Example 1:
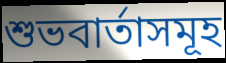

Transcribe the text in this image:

শুভবাৰ্তাসমূহ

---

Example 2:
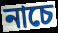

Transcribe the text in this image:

নাচে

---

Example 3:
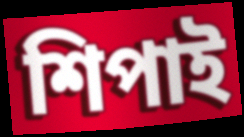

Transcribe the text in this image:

শিপাই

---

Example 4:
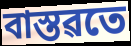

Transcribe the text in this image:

বাস্তৱতে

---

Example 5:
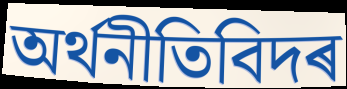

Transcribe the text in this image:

অৰ্থনীতিবিদৰ